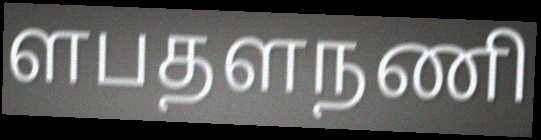
ளபதளநணி